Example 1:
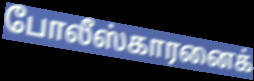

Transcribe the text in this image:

போலீஸ்காரனைக்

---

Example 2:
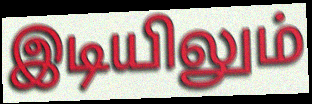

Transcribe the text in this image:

இடியிலும்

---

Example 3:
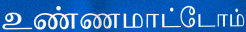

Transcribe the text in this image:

உண்ணமாட்டோம்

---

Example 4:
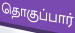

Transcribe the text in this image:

தொகுப்பார்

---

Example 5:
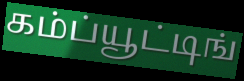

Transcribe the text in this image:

கம்ப்யூட்டிங்